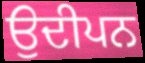
ਉਦੀਪਨ